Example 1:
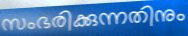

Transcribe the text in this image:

സംഭരിക്കുന്നതിനും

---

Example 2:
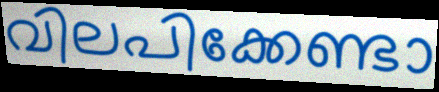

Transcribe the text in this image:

വിലപിക്കേണ്ടാ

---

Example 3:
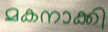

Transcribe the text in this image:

മകനാക്കി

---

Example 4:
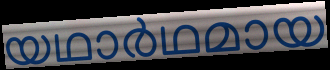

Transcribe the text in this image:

യഥാർഥമായ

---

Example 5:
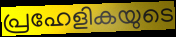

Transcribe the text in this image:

പ്രഹേളികയുടെ